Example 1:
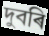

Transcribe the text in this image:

দুবৰি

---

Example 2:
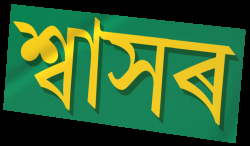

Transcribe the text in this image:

শ্বাসৰ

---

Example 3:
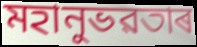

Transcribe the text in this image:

মহানুভৱতাৰ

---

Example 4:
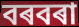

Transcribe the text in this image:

বৰবৰা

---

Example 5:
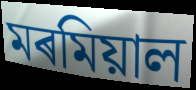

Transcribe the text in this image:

মৰমিয়াল